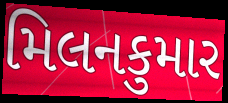
મિલનકુમાર